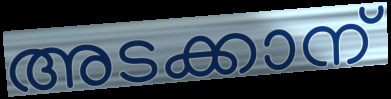
അടക്കാന്